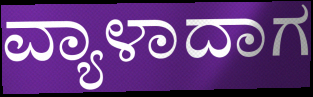
ವ್ಯಾಳಾದಾಗ